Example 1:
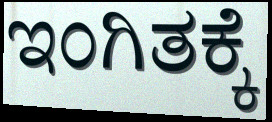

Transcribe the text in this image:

ಇಂಗಿತಕ್ಕೆ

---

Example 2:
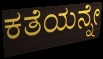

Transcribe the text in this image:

ಕತೆಯನ್ನೇ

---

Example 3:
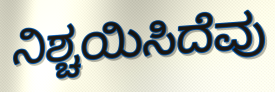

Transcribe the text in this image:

ನಿಶ್ಚಯಿಸಿದೆವು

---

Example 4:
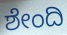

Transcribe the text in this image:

ಶೇಂದಿ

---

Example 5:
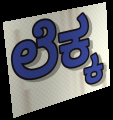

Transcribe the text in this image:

ಲೆಕ್ಕ